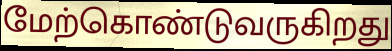
மேற்கொண்டுவருகிறது